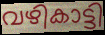
വഴികാട്ടി